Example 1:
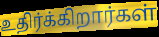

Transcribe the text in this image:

உதிர்க்கிறார்கள்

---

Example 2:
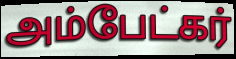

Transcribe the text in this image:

அம்பேட்கர்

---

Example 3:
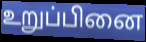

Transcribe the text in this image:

உறுப்பினை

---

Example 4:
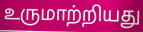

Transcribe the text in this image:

உருமாற்றியது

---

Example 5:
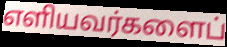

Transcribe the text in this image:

எளியவர்களைப்